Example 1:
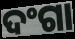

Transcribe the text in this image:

ଦଂଗା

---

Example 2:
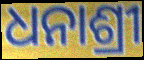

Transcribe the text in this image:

ଧନାଶ୍ରୀ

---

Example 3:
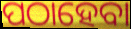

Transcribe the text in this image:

ପଠାହେବା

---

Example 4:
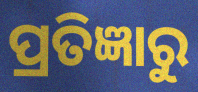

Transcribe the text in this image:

ପ୍ରତିଜ୍ଞାରୁ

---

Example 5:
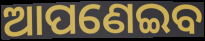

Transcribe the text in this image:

ଆପଣେଇବ